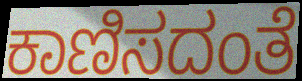
ಕಾಣಿಸದಂತೆ